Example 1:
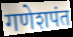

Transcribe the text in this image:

गणेशपंत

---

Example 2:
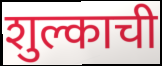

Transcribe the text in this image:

शुल्काची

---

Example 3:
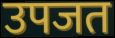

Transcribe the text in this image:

उपजत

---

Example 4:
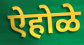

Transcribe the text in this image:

ऐहोळे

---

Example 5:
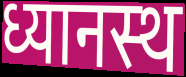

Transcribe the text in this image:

ध्यानस्थ